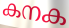
കനക